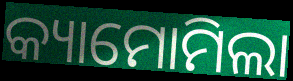
କ୍ୟାମୋମିଲା